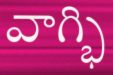
వాగ్భి